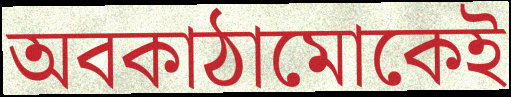
অবকাঠামোকেই